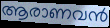
ആരാണവൻ